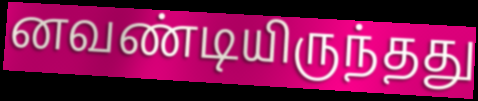
னவண்டியிருந்தது